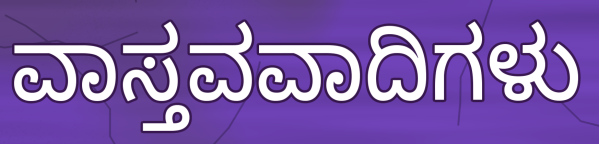
ವಾಸ್ತವವಾದಿಗಳು